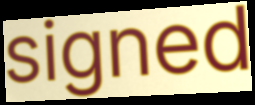
signed